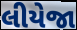
લીયેજા